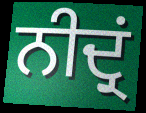
ਨੀਦ੍ਰਂ